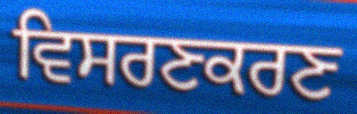
ਵਿਸਰਣਕਰਣ